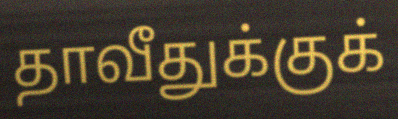
தாவீதுக்குக்